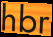
hbr